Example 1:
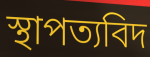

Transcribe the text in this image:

স্থাপত্যবিদ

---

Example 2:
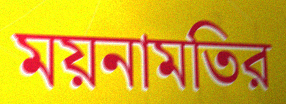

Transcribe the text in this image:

ময়নামতির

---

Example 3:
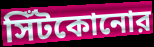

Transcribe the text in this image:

সিঁটকোনোর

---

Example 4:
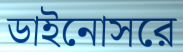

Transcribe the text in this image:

ডাইনোসরে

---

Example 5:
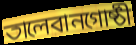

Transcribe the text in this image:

তালেবানগোষ্ঠী